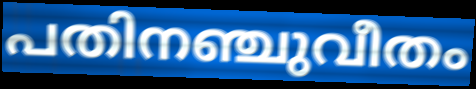
പതിനഞ്ചുവീതം